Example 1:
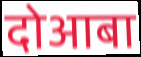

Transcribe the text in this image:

दोआबा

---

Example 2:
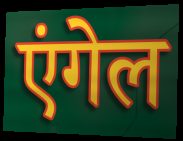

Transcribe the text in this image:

एंगेल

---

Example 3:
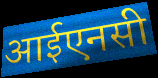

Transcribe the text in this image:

आईएनसी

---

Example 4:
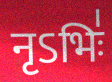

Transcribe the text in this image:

नृऽभिः॑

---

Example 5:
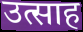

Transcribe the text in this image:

उत्‍साह